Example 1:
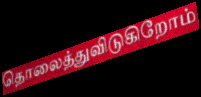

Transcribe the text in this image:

தொலைத்துவிடுகிறோம்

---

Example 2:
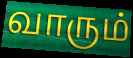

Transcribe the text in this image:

வாரும்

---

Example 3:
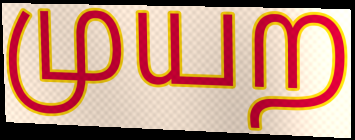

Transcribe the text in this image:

முயற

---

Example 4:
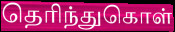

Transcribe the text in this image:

தெரிந்துகொள்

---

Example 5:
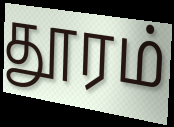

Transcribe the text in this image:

தூரம்